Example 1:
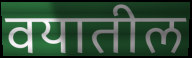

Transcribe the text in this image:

वयातील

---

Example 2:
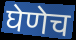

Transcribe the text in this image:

घेणेच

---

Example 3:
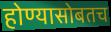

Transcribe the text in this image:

होण्यासोबतच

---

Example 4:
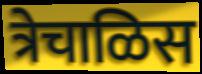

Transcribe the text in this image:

त्रेचाळिस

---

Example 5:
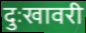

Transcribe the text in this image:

दुःखावरी